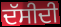
ਦੱਸੀਦੀ